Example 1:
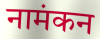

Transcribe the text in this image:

नामंकन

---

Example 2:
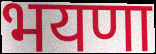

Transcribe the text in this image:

भयणा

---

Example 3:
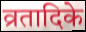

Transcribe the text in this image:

व्रतादिके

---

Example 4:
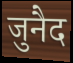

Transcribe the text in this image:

जुनैद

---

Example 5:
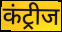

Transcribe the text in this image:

कंट्रीज